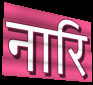
नारि